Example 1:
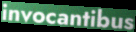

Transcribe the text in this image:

invocantibus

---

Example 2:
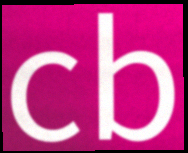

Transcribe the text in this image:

cb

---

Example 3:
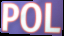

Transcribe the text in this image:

POL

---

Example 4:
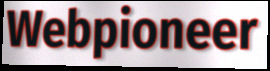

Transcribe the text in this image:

Webpioneer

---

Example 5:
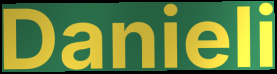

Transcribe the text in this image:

Danieli